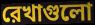
রেখাগুলো